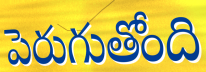
పెరుగుతోంది